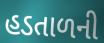
હડતાળની